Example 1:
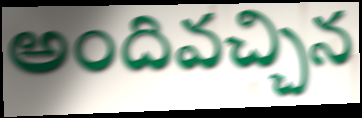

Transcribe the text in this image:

అందివచ్చిన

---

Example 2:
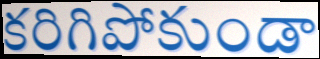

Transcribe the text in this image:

కరిగిపోకుండా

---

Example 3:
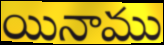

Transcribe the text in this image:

యినాము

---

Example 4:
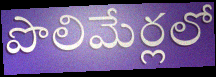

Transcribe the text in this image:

పొలిమేర్లలో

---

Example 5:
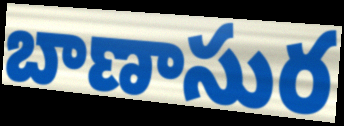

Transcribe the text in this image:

బాణాసుర